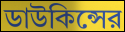
ডাউকিন্সের